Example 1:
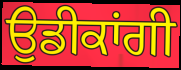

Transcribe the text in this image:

ਉਡੀਕਾਂਗੀ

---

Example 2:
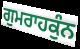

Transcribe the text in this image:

ਗੁਮਰਾਹਕੁੰਨ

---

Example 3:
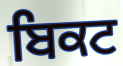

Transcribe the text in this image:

ਬਿਕਟ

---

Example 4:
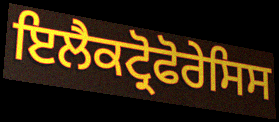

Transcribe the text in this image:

ਇਲੈਕਟ੍ਰੋਫੋਰੇਸਿਸ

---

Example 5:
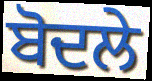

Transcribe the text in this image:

ਬੋਦਲੇ